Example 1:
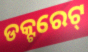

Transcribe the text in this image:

ଡକ୍ଟରେଟ୍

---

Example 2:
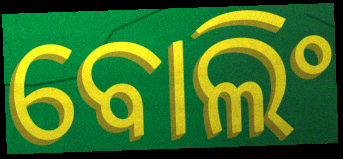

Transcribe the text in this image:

ବୋଲିଂ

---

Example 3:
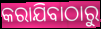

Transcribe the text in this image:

କରାଯିବାଠାରୁ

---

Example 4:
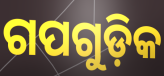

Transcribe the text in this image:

ଗପଗୁଡ଼ିକ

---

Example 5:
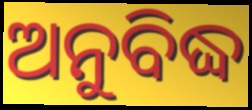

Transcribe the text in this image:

ଅନୁବିଦ୍ଧ